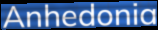
Anhedonia